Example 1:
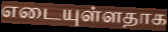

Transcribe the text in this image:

எடையுள்ளதாக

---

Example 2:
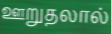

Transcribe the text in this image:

ஊறுதலால்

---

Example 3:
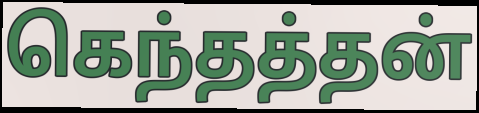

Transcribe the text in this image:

கெந்தத்தன்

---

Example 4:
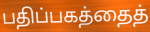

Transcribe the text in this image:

பதிப்பகத்தைத்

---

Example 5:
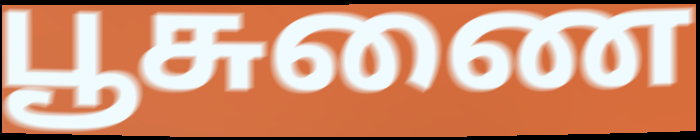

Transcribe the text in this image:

பூசுணை